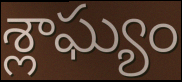
శ్లాఘ్యం